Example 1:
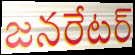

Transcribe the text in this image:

జనరేటర్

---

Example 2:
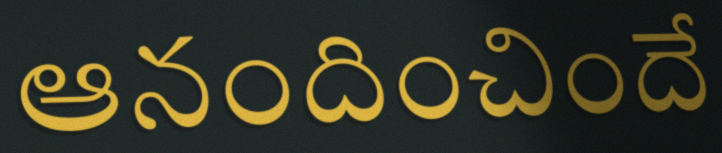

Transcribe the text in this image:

ఆనందించిందే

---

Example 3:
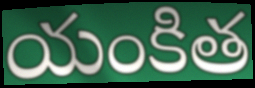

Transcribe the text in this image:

యంకిత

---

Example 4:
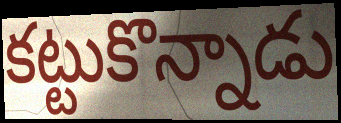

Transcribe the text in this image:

కట్టుకొన్నాడు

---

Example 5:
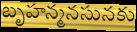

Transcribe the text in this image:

బృహన్మనసునకు